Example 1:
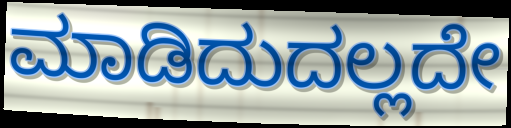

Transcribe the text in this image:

ಮಾಡಿದುದಲ್ಲದೇ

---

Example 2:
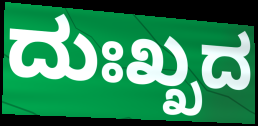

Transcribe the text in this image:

ದುಃಖ್ಖದ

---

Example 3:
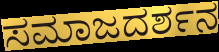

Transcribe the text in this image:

ಸಮಾಜದರ್ಶನ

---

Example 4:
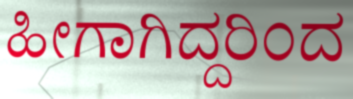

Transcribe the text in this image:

ಹೀಗಾಗಿದ್ದರಿಂದ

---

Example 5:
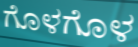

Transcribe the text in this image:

ಗೊಳಗೊಳ